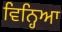
ਵਿਨ੍ਹਿਆ